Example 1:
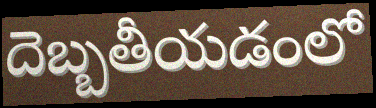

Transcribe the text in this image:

దెబ్బతీయడంలో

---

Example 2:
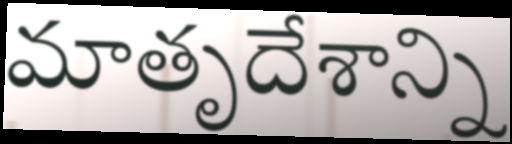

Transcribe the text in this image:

మాతృదేశాన్ని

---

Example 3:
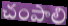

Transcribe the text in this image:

చంపాలి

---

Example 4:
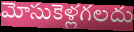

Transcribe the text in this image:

మోసుకెళ్లగలదు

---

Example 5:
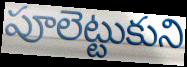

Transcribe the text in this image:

పూలెట్టుకుని